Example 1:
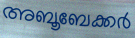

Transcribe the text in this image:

അബൂബേക്കർ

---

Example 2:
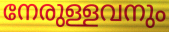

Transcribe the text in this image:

നേരുള്ളവനും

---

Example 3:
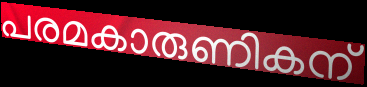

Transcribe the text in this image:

പരമകാരുണികന്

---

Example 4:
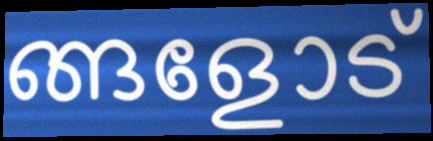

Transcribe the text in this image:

ങ്ങളോട്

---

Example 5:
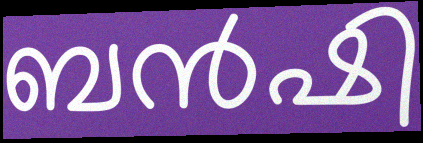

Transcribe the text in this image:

ബൻഷി